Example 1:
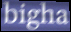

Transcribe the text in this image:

bigha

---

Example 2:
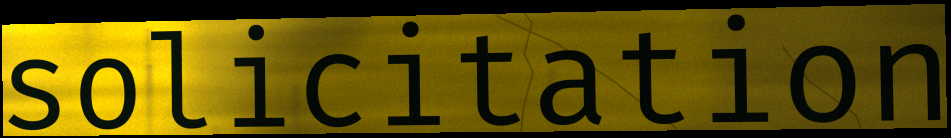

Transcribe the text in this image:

solicitation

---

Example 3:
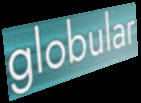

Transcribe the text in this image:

globular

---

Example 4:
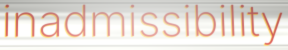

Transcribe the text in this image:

inadmissibility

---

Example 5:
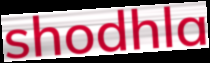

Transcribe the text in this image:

shodhla